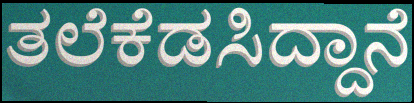
ತಲೆಕೆಡಸಿದ್ದಾನೆ